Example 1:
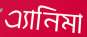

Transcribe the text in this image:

এ্যানিমা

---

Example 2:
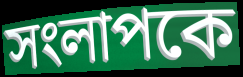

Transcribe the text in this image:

সংলাপকে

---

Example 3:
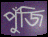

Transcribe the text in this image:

পুঁজি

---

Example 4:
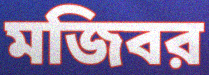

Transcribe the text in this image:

মজিবর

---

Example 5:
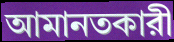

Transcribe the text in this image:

আমানতকারী